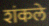
शंकले